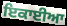
ਇਕਾਈਆ